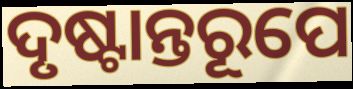
ଦୃଷ୍ଟାନ୍ତରୂପେ